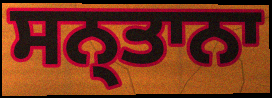
ਸਨ੍ਤਾਨਾ